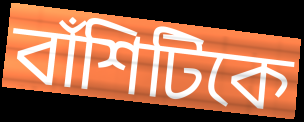
বাঁশিটিকে